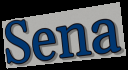
Sena